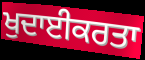
ਖੁਦਾਈਕਰਤਾ